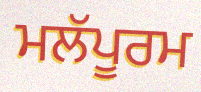
ਮਲੱਪੂਰਮ